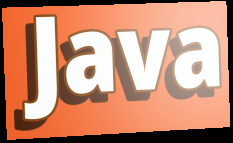
Java